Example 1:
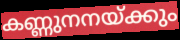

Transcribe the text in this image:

കണ്ണുനനയ്ക്കും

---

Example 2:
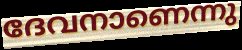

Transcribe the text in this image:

ദേവനാണെന്നു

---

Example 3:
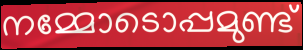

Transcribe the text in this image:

നമ്മോടൊപ്പമുണ്ട്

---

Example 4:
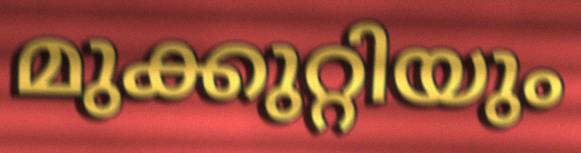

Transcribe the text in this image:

മുക്കുറ്റിയും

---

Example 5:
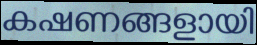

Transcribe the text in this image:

കഷണങ്ങളായി